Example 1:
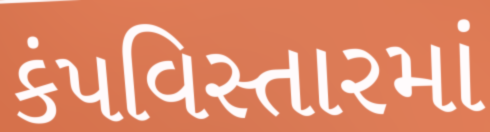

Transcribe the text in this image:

કંપવિસ્તારમાં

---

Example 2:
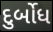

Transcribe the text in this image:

દુર્બોધ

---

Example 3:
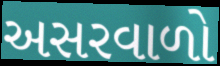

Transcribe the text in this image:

અસરવાળો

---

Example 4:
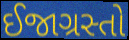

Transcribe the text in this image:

ઈજાગ્રસ્તો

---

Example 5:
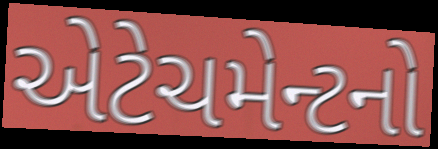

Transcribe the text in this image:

એટેચમેન્ટનો